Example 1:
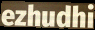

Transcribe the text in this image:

ezhudhi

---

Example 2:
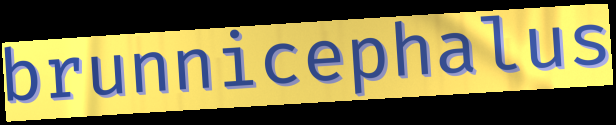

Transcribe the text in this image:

brunnicephalus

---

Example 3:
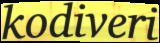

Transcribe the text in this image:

kodiveri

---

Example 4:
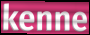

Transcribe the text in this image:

kenne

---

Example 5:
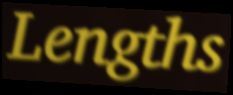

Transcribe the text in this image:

Lengths